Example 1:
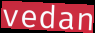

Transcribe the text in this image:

vedan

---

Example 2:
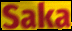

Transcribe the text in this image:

Saka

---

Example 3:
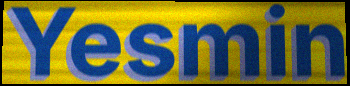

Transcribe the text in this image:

Yesmin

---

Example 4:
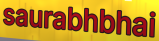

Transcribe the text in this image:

saurabhbhai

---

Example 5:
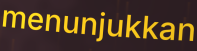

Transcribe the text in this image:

menunjukkan